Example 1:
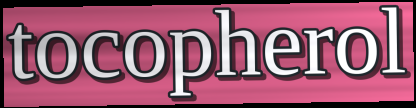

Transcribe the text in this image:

tocopherol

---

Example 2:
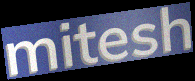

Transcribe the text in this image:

mitesh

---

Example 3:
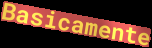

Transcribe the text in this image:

Basicamente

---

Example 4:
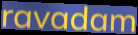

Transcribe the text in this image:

ravadam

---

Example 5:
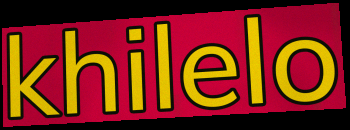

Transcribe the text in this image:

khilelo